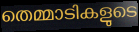
തെമ്മാടികളുടെ